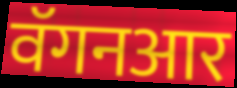
वॅगनआर